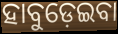
ହାବୁଡ଼େଇବା